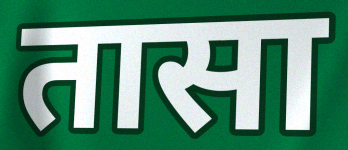
तासा